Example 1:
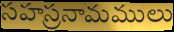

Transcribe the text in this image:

సహస్రనామములు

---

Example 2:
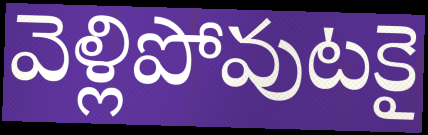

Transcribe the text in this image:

వెళ్లిపోవుటకై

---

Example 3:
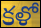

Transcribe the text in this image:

కళో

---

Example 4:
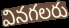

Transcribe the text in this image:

వినగలరు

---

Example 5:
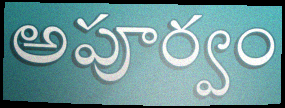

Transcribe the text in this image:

అపూర్వం